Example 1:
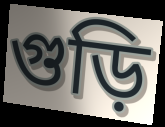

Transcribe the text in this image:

গুড়ি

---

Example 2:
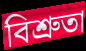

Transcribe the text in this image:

বিশ্রুতা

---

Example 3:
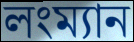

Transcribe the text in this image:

লংম্যান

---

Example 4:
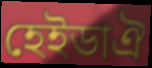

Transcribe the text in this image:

হেইডাঐ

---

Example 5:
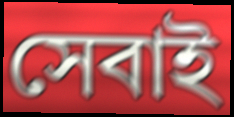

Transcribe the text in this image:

সেবাই